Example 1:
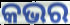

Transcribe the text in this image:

କଭର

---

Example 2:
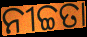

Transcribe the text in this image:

ନୀଚ୍ଚତା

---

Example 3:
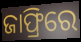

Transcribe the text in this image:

ଜାଫ୍ରିରେ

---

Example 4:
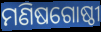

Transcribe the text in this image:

ମଣିଷଗୋଷ୍ଠୀ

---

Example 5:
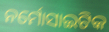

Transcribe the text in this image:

ନର୍ମୋସାଇଟିକ